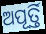
ଅପୂର୍ତ୍ତି